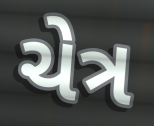
ચેત્ર